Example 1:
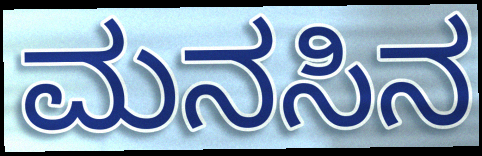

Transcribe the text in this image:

ಮನಸಿನ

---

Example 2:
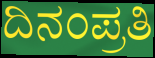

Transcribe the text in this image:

ದಿನಂಪ್ರತಿ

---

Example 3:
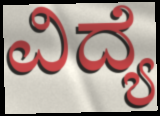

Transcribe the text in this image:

ವಿದ್ಯೆ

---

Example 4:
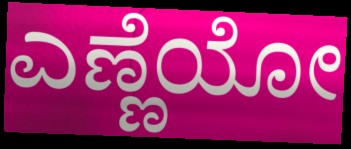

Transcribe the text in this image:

ಎಣ್ಣೆಯೋ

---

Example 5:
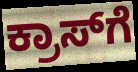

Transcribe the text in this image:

ಕ್ರಾಸ್‌ಗೆ